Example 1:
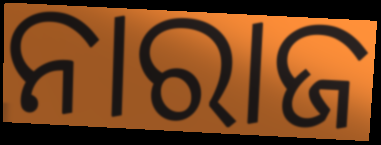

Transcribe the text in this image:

ନାରାଜ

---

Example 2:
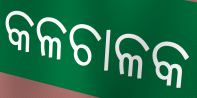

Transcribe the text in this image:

କଳଚାଳକ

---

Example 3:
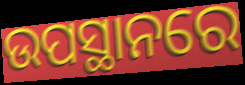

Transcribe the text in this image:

ଉପସ୍ଥାନରେ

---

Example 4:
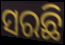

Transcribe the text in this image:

ସରଛି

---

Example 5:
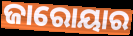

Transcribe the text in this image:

ଜାରୋୟାର